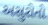
અસુરોનો